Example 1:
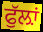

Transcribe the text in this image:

ਫੁੱਲ਼ਾਂ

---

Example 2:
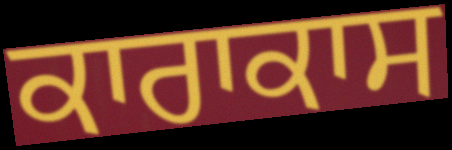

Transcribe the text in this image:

ਕਾਰਾਕਾਸ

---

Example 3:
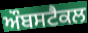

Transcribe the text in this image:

ਔਬਸਟੈਕਲ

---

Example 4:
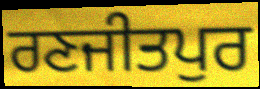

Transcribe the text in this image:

ਰਣਜੀਤਪੁਰ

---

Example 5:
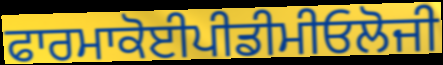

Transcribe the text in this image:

ਫਾਰਮਾਕੋਈਪੀਡੀਮੀਓਲੋਜੀ